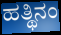
ಹತ್ಥಿನಂ